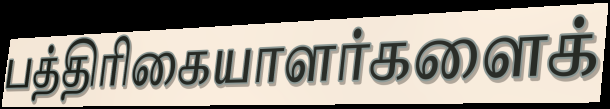
பத்திரிகையாளர்களைக்